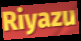
Riyazu